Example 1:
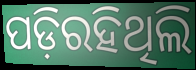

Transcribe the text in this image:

ପଡ଼ିରହିଥିଲି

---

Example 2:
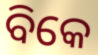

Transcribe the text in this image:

ବିକେ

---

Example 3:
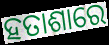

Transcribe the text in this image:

ହତାଶାରେ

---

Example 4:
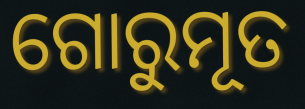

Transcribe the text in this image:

ଗୋରୁମୂତ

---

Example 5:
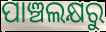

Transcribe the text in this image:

ପାଞ୍ଚଲକ୍ଷରୁ